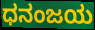
ಧನಂಜಯ